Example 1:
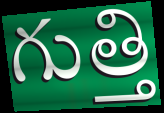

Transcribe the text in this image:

గుత్తి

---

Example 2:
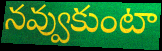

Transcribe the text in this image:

నవ్వుకుంటా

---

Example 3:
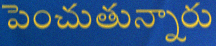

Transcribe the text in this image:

పెంచుతున్నారు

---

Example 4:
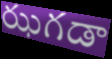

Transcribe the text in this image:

ఝగడా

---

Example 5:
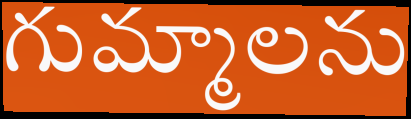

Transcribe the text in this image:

గుమ్మాలను